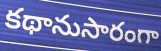
కథానుసారంగా